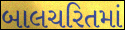
બાલચરિતમાં